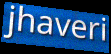
jhaveri